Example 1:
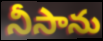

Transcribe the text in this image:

నీసాను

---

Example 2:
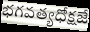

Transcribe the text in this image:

భగవత్యధోక్షజే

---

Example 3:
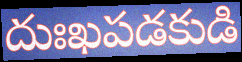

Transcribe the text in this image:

దుఃఖపడకుడి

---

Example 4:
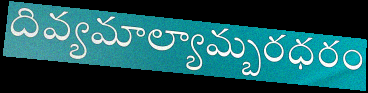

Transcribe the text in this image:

దివ్యమాల్యామ్బరధరం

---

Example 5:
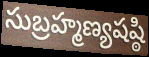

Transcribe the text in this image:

సుబ్రహ్మణ్యషష్ఠి